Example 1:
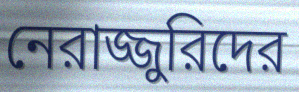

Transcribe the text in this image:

নেরাজ্জুরিদের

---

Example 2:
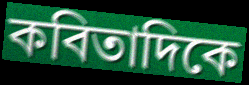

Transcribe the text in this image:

কবিতাদিকে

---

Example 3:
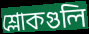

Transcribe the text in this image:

শ্লোকগুলি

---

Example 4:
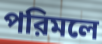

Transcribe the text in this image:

পরিমলে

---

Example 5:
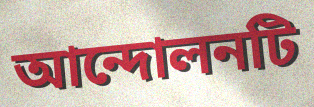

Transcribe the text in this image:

আন্দোলনটি